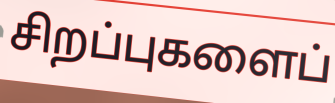
சிறப்புகளைப்